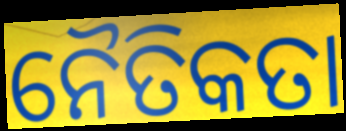
ନୈତିକତା